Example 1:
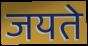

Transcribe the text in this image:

जयते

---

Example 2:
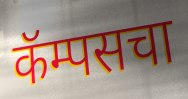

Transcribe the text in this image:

कॅम्पसचा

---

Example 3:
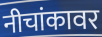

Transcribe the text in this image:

नीचांकावर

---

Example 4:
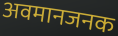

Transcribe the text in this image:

अवमानजनक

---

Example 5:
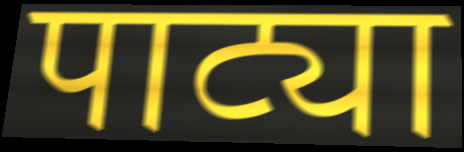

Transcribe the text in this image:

पाट्या